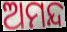
ଅମନ୍ଦ